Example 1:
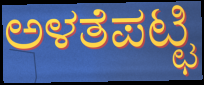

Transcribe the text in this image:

ಅಳತೆಪಟ್ಟಿ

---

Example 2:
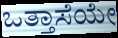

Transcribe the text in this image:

ಒತ್ತಾಸೆಯೇ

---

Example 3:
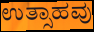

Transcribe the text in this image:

ಉತ್ಸಾಹವು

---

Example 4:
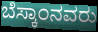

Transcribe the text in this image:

ಬೆಸ್ಕಾಂನವರು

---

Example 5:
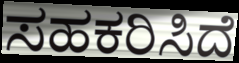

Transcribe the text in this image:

ಸಹಕರಿಸಿದೆ